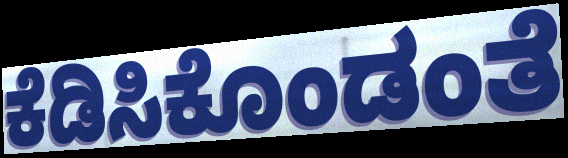
ಕೆಡಿಸಿಕೊಂಡಂತೆ